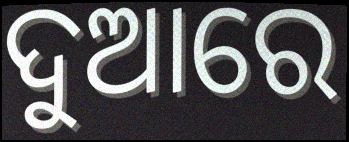
ଦୁଆରେ